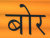
बोर